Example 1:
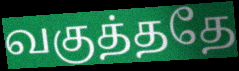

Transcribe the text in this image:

வகுத்ததே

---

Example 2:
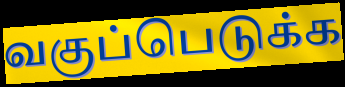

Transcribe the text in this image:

வகுப்பெடுக்க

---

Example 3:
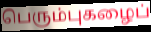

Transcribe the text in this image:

பெரும்புகழைப்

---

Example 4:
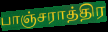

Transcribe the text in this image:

பாஞ்சராத்திர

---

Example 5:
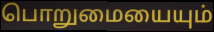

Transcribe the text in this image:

பொறுமையையும்